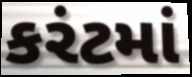
કરંટમાં